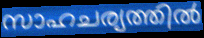
സാഹചര്യത്തിൽ